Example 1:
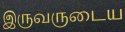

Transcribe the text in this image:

இருவருடைய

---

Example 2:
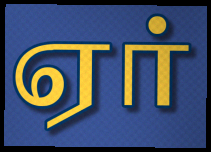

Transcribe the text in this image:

ஏர்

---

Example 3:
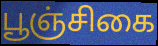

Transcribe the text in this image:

பூஞ்சிகை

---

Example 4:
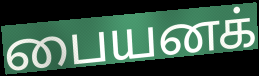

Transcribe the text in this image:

பையனக்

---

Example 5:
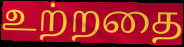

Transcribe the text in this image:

உற்றதை